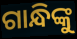
ଗାନ୍ଧିଙ୍କୁ